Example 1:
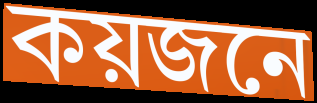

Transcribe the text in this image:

কয়জনে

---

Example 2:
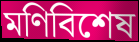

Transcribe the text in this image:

মণিবিশেষ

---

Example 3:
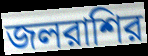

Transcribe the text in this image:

জলরাশির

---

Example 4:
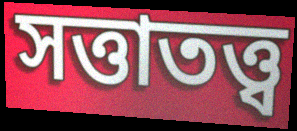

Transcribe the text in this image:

সত্তাতত্ত্ব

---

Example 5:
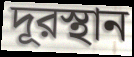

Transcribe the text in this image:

দূরস্থান